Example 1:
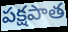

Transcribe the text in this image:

పక్షపాత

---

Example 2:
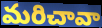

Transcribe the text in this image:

మరిచావా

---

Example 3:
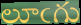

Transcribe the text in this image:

లూఁగు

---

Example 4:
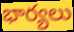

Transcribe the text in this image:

భార్యలు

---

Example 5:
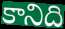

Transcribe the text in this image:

కానిది